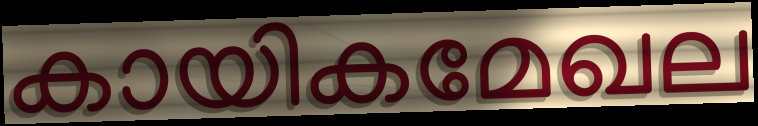
കായികമേഖല